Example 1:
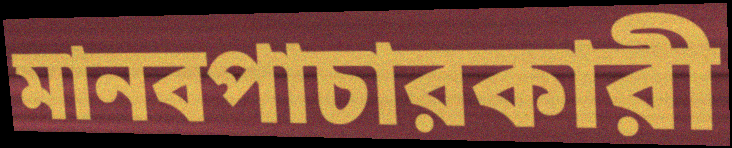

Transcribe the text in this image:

মানবপাচারকারী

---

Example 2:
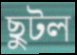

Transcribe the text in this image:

ছুটল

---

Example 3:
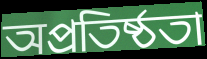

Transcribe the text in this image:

অপ্রতিষ্ঠতা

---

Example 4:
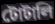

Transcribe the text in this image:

টোটালি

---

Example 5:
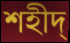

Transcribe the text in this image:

শহীদ্